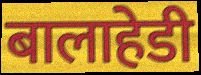
बालाहेडी